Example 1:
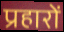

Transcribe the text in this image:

प्रहारों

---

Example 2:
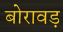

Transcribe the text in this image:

बोरावड़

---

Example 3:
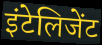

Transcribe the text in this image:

इंटेलिजेंट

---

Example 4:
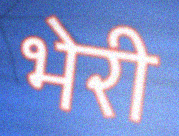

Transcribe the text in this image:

भेरी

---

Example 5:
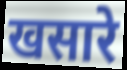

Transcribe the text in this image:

खसारे